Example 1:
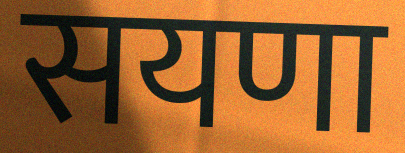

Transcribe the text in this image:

सयणा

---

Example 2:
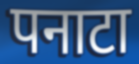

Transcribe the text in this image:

पनाटा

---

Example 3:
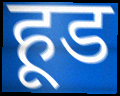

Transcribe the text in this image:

हूड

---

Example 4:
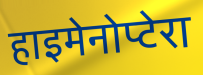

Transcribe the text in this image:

हाइमेनोप्टेरा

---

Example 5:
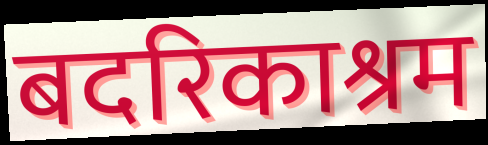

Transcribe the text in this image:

बदरिकाश्रम